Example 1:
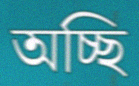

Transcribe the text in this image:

অচ্ছি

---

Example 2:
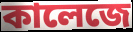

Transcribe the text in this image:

কালেজে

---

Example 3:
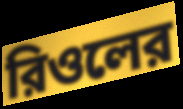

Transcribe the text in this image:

রিওলের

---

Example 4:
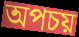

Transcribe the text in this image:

অপচয়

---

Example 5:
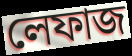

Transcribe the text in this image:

লেফাজ